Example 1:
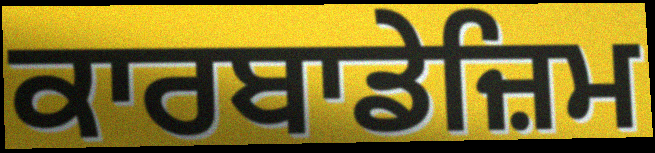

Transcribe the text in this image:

ਕਾਰਬਾਡੇਜ਼ਿਮ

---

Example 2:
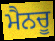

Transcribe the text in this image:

ਮੈਨਚੂ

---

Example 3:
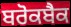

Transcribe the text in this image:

ਬਰੋਕਬੈਕ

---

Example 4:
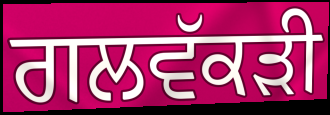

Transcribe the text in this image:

ਗਲਵੱਕੜੀ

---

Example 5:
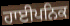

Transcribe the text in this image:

ਹਾਈਪਨਿਕ